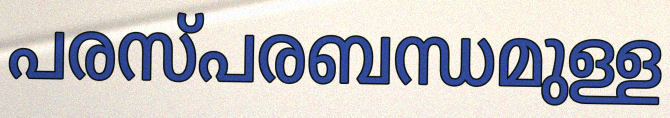
പരസ്പരബന്ധമുള്ള